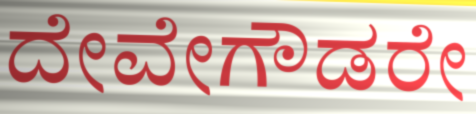
ದೇವೇಗೌಡರೇ